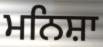
ਮਨਿਸ਼ਾ